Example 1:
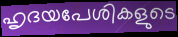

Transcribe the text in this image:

ഹൃദയപേശികളുടെ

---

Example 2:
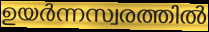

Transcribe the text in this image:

ഉയർന്നസ്വരത്തിൽ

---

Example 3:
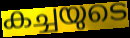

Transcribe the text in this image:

കച്ചയുടെ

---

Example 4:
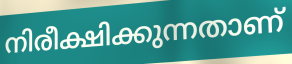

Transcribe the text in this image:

നിരീക്ഷിക്കുന്നതാണ്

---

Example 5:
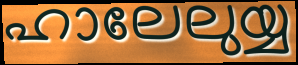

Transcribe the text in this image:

ഹാലേലുയ്യ